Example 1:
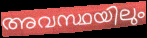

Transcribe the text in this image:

അവസ്ഥയിലും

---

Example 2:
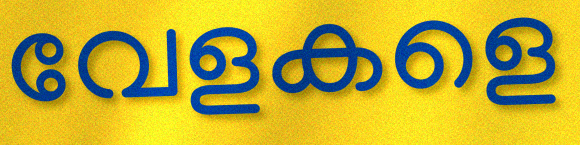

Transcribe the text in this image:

വേളകളെ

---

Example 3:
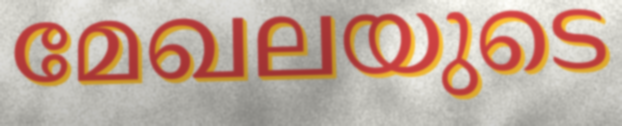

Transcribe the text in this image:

മേഖലയുടെ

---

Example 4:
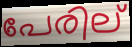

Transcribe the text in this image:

പേരില്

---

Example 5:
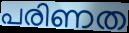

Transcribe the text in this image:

പരിണത